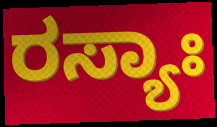
ರಸ್ಯಾಃ